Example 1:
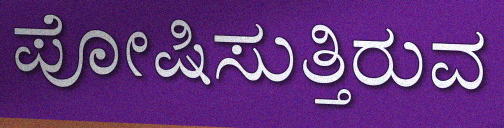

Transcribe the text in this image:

ಪೋಷಿಸುತ್ತಿರುವ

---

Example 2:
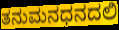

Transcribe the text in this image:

ತನುಮನಧನದಲಿ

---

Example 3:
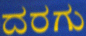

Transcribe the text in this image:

ದರಗು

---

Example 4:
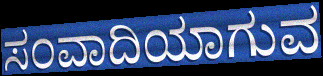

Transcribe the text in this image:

ಸಂವಾದಿಯಾಗುವ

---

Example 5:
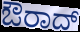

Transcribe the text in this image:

ಔರಾದ್